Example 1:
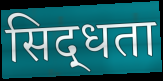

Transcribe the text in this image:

सिद्धता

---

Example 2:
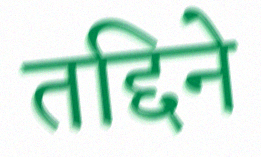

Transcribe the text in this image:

तद्दिने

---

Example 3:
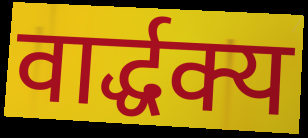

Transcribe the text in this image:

वार्द्धक्य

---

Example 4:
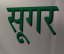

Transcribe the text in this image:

सूगर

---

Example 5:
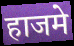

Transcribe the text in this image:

हाजमे